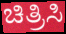
ಚಿತ್ರಿಸಿ